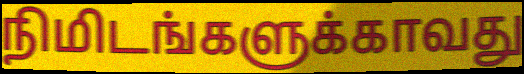
நிமிடங்களுக்காவது